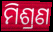
ମିଶ୍ରଣ